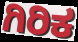
ಗಿರಿಕ